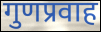
गुणप्रवाह